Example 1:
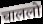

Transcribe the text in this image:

चाललो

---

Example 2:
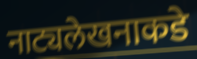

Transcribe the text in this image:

नाट्यलेखनाकडे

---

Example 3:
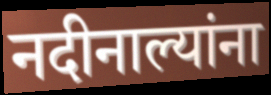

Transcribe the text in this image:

नदीनाल्यांना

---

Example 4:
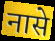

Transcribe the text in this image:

नासे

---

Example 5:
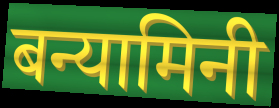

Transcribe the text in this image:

बन्यामिनी